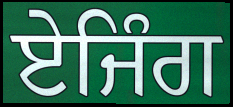
ਏਜਿੰਗ